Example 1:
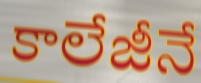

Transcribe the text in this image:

కాలేజీనే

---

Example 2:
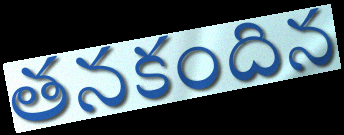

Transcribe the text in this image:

తనకందిన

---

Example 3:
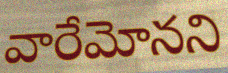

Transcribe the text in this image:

వారేమోనని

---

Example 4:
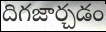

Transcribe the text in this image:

దిగజార్చడం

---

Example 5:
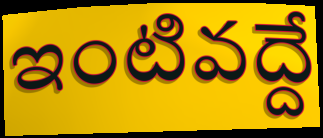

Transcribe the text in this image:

ఇంటివద్దే